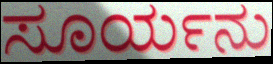
ಸೂರ್ಯನು